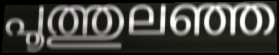
പൂത്തുലഞ്ഞ